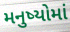
મનુષ્યોમાં